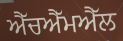
ਐੱਚਐੱਮਐੱਲ